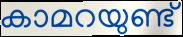
കാമറയുണ്ട്